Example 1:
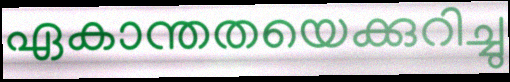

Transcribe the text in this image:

ഏകാന്തതയെക്കുറിച്ചു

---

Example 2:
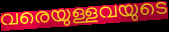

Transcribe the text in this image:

വരെയുള്ളവയുടെ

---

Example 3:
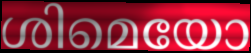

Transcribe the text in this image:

ശിമെയോ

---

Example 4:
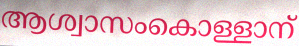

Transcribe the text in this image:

ആശ്വാസംകൊള്ളാന്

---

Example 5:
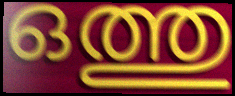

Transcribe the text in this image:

ഒത്തു